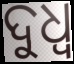
ଦୁଧ୍ଵ